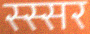
स्स्सर